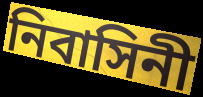
নিবাসিনী